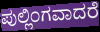
ಪುಲ್ಲಿಂಗವಾದರೆ